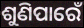
ଶୁଣିପାରେଁ